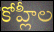
కోహ్లీల